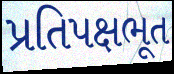
પ્રતિપક્ષભૂત